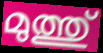
മുത്തു്